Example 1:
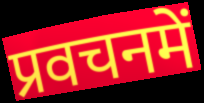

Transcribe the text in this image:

प्रवचनमें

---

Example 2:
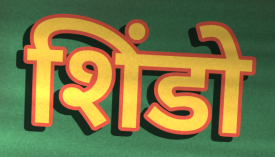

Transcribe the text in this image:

शिंडो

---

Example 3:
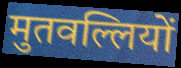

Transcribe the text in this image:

मुतवल्लियों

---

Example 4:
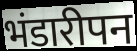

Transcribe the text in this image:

भंडारीपन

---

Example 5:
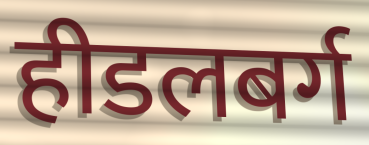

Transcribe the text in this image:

हीडलबर्ग